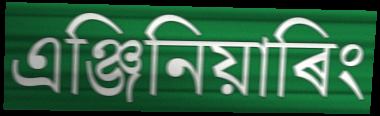
এঞ্জিনিয়াৰিং